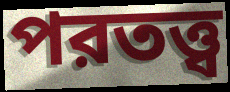
পরতত্ত্ব